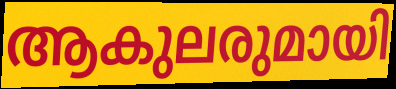
ആകുലരുമായി